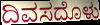
ದಿವಸದೊಳು